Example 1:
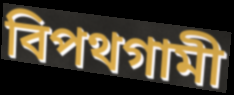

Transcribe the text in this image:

বিপথগামী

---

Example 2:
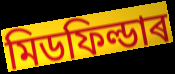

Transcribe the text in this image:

মিডফিল্ডাৰ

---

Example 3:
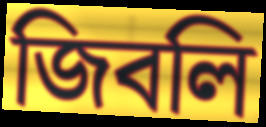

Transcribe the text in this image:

জিবলি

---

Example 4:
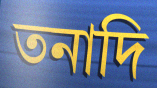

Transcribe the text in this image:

তনাদি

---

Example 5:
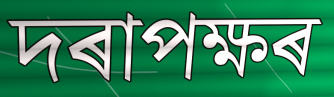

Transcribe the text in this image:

দৰাপক্ষৰ